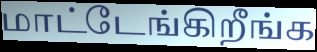
மாட்டேங்கிறீங்க